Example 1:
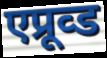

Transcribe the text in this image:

एप्रूव्ड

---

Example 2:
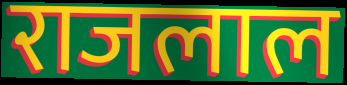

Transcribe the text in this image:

राजलाल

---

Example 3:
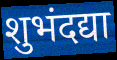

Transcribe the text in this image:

शुभंदद्या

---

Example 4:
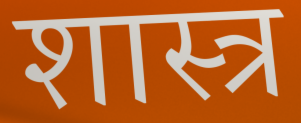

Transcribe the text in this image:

शास्‍त्र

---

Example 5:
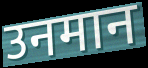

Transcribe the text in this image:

उनमान